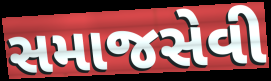
સમાજસેવી